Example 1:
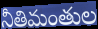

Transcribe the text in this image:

నీతిమంతుల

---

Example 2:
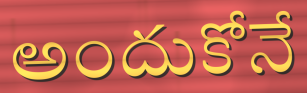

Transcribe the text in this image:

అందుకోనే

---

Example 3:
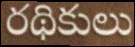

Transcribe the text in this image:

రథికులు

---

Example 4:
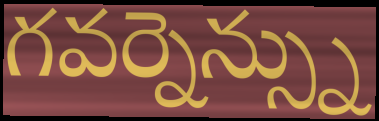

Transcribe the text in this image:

గవర్నెన్స్ను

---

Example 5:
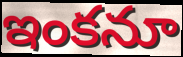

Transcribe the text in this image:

ఇంకనూ